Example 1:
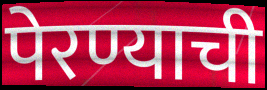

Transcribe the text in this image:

पेरण्याची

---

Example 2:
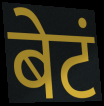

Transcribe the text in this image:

बेटं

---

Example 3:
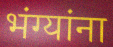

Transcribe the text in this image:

भंग्यांना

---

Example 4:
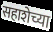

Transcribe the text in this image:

सहाशेच्या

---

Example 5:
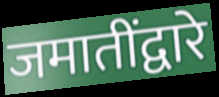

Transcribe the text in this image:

जमातींद्वारे